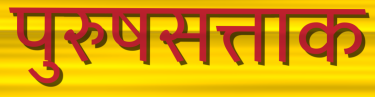
पुरुषसत्ताक